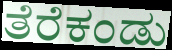
ತೆರೆಕಂಡು